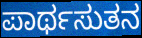
ಪಾರ್ಥಸುತನ